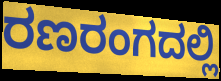
ರಣರಂಗದಲ್ಲಿ